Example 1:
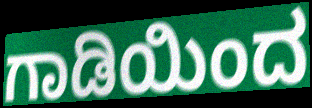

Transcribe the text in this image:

ಗಾಡಿಯಿಂದ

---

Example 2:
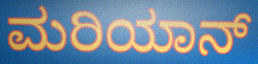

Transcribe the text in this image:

ಮರಿಯಾನ್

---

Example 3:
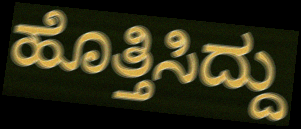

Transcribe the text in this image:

ಹೊತ್ತಿಸಿದ್ದು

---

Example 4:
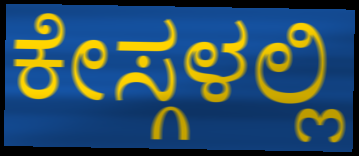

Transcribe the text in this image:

ಕೇಸ್ಗಳಲ್ಲಿ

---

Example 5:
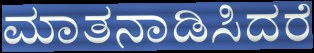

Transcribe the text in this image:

ಮಾತನಾಡಿಸಿದರೆ